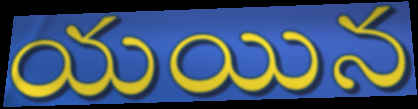
యయిన